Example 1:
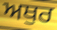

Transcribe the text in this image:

ਅਥੁਰ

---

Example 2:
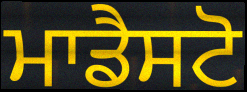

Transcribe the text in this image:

ਮਾਡੈਸਟੋ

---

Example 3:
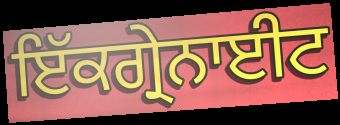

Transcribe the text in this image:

ਇੱਕਗ੍ਰੇਨਾਈਟ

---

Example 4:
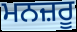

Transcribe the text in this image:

ਮਨਜ਼ਰੂ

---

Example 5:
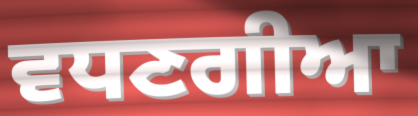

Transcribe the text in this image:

ਵਧਣਗੀਆ